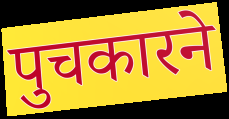
पुचकारने